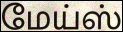
மேய்ஸ்